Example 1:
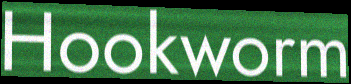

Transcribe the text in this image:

Hookworm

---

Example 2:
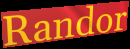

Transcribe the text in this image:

Randor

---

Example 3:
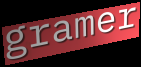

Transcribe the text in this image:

gramer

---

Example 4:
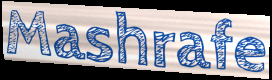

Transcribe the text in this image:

Mashrafe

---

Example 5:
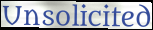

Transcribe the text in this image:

Unsolicited